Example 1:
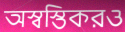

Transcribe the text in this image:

অস্বস্তিকরও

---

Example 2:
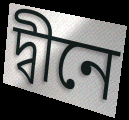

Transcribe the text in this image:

দ্বীনে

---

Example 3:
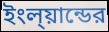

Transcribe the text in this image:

ইংল্য়ান্ডের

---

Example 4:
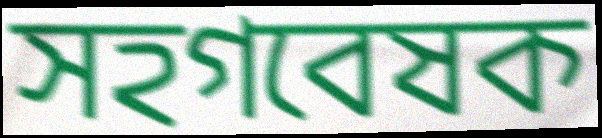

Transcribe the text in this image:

সহগবেষক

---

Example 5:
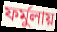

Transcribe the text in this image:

ফর্মুলায়